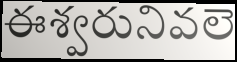
ఈశ్వరునివలె